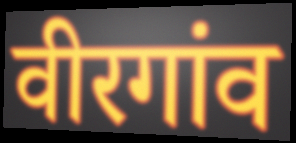
वीरगांव